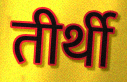
तीर्थी